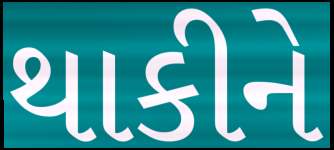
થાકીને